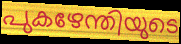
പുകഴേന്തിയുടെ